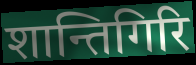
शान्तिगिरि